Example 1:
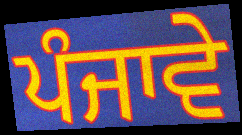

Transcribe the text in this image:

ਪੰਜਾਵੇ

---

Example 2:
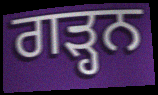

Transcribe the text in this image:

ਗੜ੍ਹਨ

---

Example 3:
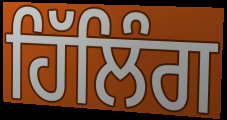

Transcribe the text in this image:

ਹਿੱਲਿੰਗ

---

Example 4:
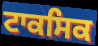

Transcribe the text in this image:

ਟਾਕਸਿਕ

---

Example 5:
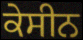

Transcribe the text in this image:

ਕੇਸੀਨ